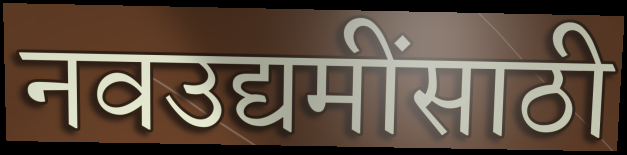
नवउद्यमींसाठी